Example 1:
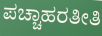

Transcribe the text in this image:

ಪಚ್ಚಾಹರತೀತಿ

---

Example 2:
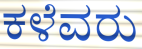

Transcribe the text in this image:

ಕಳೆವರು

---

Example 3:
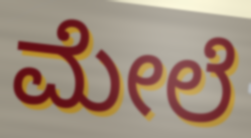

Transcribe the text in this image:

ಮೇಲೆ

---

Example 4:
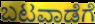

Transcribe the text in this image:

ಬಟವಾಡೆಗೆ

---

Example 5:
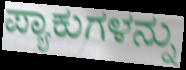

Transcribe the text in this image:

ಪ್ಯಾಕುಗಳನ್ನು